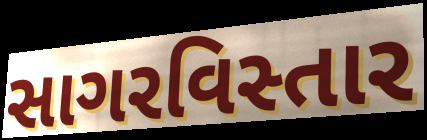
સાગરવિસ્તાર